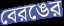
বেরঙের